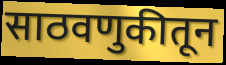
साठवणुकीतून